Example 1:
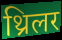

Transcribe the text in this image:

थ्रिलर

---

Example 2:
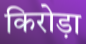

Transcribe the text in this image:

किरोड़ा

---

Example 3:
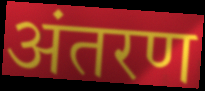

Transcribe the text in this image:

अंतरण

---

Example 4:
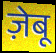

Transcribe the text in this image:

ज़ेबू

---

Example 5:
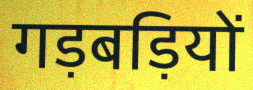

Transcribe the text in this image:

गड़बड़ियों